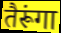
तैरूंगा